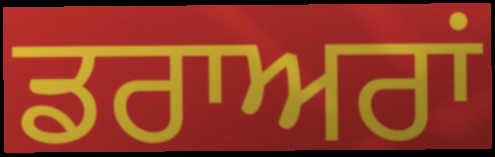
ਡਰਾਅਰਾਂ